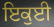
ਇਕੁਈ